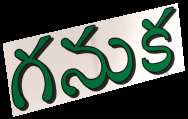
గనుక